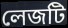
লেজটি